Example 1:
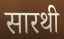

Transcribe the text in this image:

सारथी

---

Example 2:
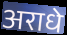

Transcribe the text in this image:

अराधे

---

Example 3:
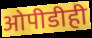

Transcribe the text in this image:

ओपीडीही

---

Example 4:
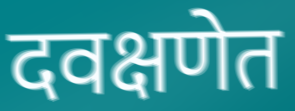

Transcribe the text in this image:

दवक्षणेत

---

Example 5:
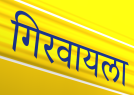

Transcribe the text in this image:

गिरवायला